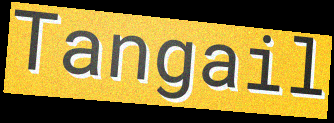
Tangail